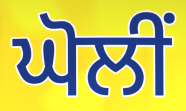
ਘੋਲੀਂ